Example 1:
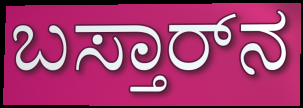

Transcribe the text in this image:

ಬಸ್ತಾರ್‌ನ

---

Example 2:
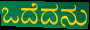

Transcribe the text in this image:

ಒದೆದನು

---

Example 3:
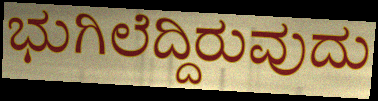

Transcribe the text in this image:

ಭುಗಿಲೆದ್ದಿರುವುದು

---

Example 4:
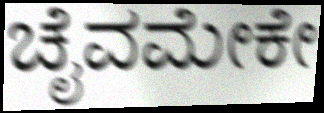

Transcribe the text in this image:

ಚೈವಮೇಕೇ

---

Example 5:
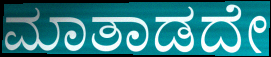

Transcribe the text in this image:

ಮಾತಾಡದೇ